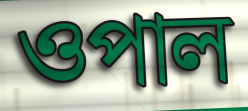
ওপাল